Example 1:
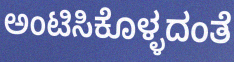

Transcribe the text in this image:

ಅಂಟಿಸಿಕೊಳ್ಳದಂತೆ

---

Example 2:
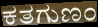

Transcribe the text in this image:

ಕತಗುಣಂ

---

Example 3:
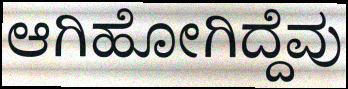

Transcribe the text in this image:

ಆಗಿಹೋಗಿದ್ದೆವು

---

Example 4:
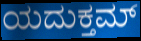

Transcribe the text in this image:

ಯದುಕ್ತಮ್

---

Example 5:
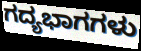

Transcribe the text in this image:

ಗದ್ಯಭಾಗಗಳು